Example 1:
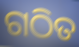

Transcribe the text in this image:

ଗଠିତ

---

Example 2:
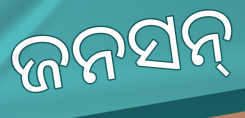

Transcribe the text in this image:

ଜନସନ୍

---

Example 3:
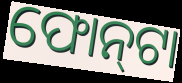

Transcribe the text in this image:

ଫୋନ୍‍ଟା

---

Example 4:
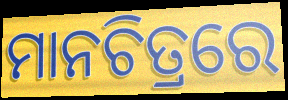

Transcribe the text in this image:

ମାନଚିତ୍ରରେ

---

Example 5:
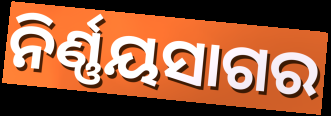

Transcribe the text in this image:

ନିର୍ଣ୍ଣୟସାଗର